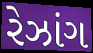
રેઝાંગ